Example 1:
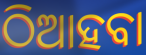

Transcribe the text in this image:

ଠିଆହବା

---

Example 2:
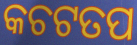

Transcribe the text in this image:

କଚଟତପ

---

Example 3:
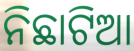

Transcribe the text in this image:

ନିଛାଟିଆ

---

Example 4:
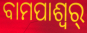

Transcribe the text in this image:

ବାମପାଶ୍ୱର୍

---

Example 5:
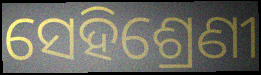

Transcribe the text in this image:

ସେହିଶ୍ରେଣୀ